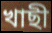
খাছী